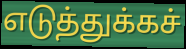
எடுத்துக்கச்